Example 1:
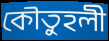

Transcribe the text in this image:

কৌতুহলী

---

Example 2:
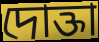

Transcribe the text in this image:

দোক্তা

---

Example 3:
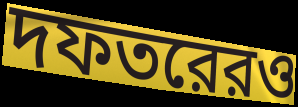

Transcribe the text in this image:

দফতরেরও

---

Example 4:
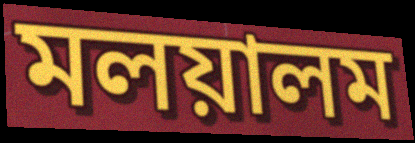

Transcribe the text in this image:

মলয়ালম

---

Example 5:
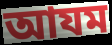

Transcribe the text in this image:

আযম